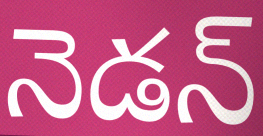
నెడన్